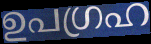
ഉപഗ്രഹ